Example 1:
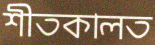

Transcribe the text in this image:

শীতকালত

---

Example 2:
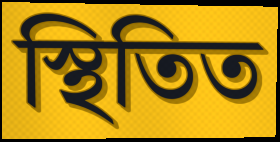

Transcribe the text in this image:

স্থিতিত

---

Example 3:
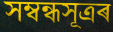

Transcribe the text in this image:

সম্বন্ধসূত্ৰৰ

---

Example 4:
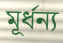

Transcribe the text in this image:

মূৰ্ধন্য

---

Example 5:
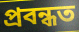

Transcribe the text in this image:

প্ৰবন্ধত